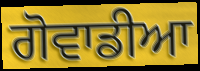
ਗੋਵਾਡੀਆ